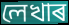
লেখাৰ